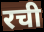
रची